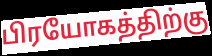
பிரயோகத்திற்கு